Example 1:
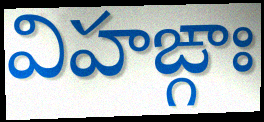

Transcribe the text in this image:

విహఙ్గాః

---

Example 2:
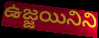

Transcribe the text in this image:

ఉజ్జయినిని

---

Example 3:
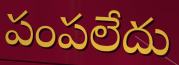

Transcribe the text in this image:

పంపలేదు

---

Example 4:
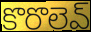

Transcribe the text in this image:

కొరొలెవ్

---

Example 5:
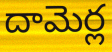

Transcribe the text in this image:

దామెర్ల